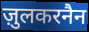
ज़ुलकरनैन